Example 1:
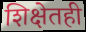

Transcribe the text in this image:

शिक्षेतही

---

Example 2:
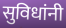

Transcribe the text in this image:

सुविधांनी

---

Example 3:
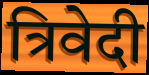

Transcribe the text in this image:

त्रिवेदी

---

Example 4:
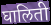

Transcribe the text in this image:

घालिती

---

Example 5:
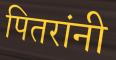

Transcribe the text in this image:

पितरांनी